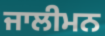
ਜਾਲੀਮਨ